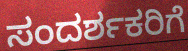
ಸಂದರ್ಶಕರಿಗೆ